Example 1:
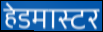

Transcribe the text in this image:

हेडमास्टर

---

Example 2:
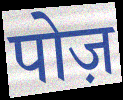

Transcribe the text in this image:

पोज़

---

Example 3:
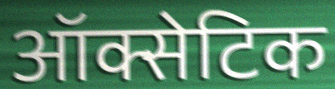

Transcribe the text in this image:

ऑक्सेटिक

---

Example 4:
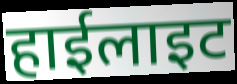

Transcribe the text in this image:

हाईलाइट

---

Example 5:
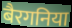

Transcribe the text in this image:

बैरगनिया